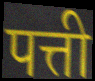
पत्ती